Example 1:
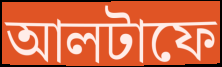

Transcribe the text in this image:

আলটাফে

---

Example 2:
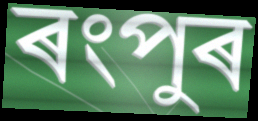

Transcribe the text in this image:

ৰংপুৰ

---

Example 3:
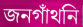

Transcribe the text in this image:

জনগাঁথনি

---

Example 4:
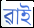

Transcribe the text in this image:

ৱাই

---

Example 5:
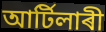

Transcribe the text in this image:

আৰ্টিলাৰী